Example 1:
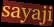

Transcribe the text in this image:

sayaji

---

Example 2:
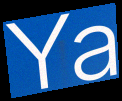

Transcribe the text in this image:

Ya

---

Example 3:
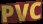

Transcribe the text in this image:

PVC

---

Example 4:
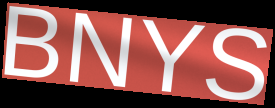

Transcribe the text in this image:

BNYS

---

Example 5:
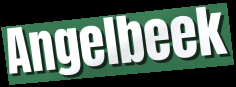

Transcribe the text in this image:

Angelbeek